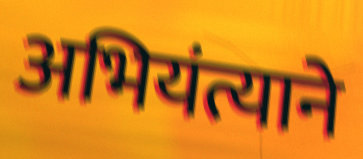
अभियंत्याने